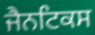
ਜੈਨਟਿਕਸ